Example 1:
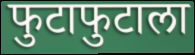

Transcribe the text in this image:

फुटाफुटाला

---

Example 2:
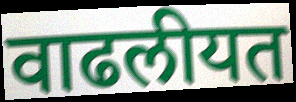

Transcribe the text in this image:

वाढलीयत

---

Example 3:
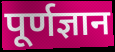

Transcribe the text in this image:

पूर्णज्ञान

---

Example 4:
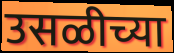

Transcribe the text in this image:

उसळीच्या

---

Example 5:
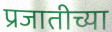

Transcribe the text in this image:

प्रजातीच्या